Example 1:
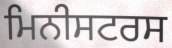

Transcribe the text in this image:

ਮਿਨੀਸਟਰਸ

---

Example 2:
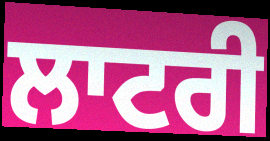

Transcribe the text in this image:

ਲਾਟਰੀ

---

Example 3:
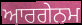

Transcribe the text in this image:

ਆਰਗੇਨਮ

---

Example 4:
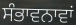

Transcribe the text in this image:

ਸੰਭਾਵਨਾਵਾਂ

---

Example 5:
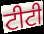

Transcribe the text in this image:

ਟੀਟੀ